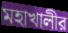
মহাখালীর